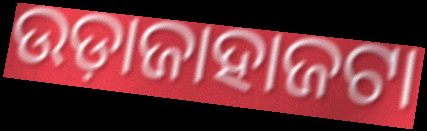
ଉଡ଼ାଜାହାଜଟା